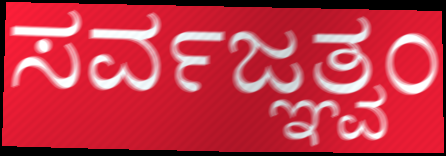
ಸರ್ವಜ್ಞತ್ವಂ